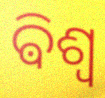
ଵିଶ୍ୱ